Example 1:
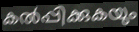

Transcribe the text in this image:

കൽപ്പിക്കുകയും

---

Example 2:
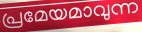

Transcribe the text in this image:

പ്രമേയമാവുന്ന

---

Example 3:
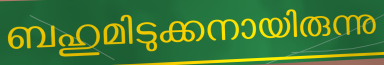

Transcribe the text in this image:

ബഹുമിടുക്കനായിരുന്നു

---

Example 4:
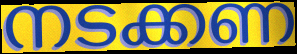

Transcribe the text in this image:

നടക്കണ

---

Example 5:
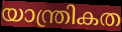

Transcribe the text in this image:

യാന്ത്രികത